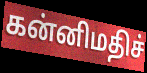
கன்னிமதிச்